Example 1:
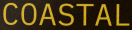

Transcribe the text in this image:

COASTAL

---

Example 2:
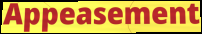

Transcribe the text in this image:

Appeasement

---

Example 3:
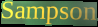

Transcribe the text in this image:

Sampson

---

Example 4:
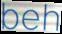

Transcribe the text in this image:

beh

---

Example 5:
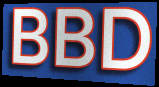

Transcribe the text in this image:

BBD